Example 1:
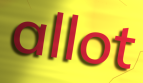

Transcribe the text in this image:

allot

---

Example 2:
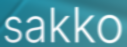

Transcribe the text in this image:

sakko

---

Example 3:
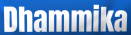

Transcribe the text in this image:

Dhammika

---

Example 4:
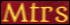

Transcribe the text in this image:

Mtrs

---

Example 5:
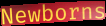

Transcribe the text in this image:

Newborns